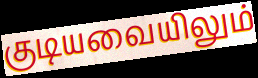
குடியவையிலும்